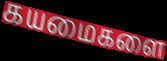
கயமைகளை